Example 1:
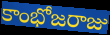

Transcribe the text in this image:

కాంభోజరాజు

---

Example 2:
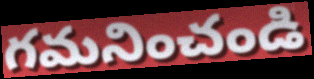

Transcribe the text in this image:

గమనించండి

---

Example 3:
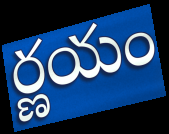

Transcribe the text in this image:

ర్ణయం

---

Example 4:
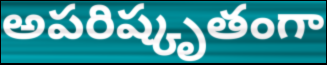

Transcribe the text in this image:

అపరిష్కృతంగా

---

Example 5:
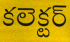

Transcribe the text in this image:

కలెక్టర్